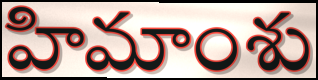
హిమాంశు